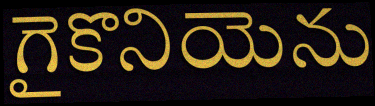
గైకొనియెను